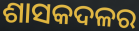
ଶାସକଦଳର